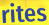
rites